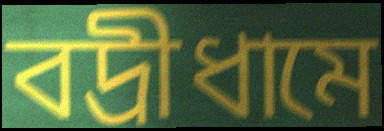
বদ্রীধামে